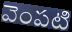
వెంపటి